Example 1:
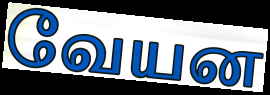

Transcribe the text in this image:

வேயன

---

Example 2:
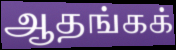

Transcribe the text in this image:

ஆதங்கக்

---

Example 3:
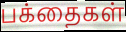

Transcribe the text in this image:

பக்தைகள்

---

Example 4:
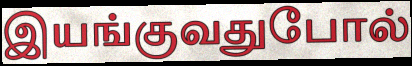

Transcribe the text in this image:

இயங்குவதுபோல்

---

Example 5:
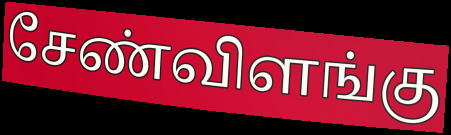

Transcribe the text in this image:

சேண்விளங்கு